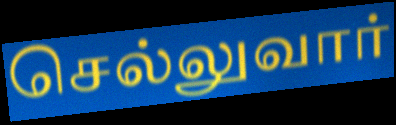
செல்லுவார்